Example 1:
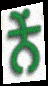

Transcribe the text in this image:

ਨੇਂ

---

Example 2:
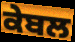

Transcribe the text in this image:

ਕੇਬਲ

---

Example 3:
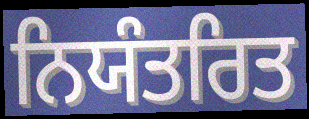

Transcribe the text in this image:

ਨਿਯੰਤਰਿਤ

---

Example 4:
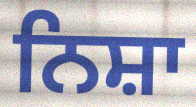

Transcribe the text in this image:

ਨਿਸ਼ਾ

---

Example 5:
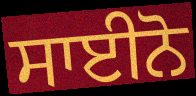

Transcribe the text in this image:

ਸਾਈਨੋ